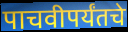
पाचवीपर्यंतचे